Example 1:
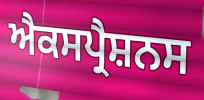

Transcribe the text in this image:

ਐਕਸਪ੍ਰੈਸ਼ਨਸ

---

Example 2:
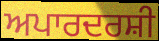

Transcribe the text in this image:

ਅਪਾਰਦਰਸ਼ੀ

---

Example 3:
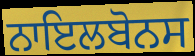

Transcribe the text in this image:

ਨਾਇਲਬੋਨਸ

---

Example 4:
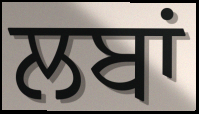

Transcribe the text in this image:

ਲਬਾਂ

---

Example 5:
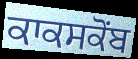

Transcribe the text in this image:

ਕਾਕਸਕੋਂਬ